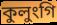
কুলুংগি